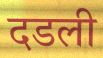
दडली